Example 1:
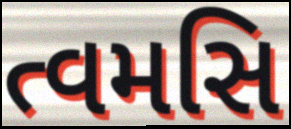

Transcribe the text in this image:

ત્વમસિ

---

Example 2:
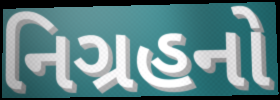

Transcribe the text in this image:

નિગ્રહનો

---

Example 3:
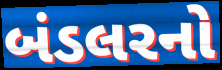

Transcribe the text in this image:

બંડલરનો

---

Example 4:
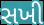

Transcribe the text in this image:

સખી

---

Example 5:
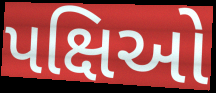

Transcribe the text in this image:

પક્ષિઓ